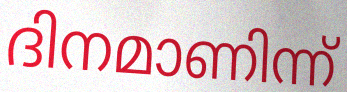
ദിനമാണിന്ന്